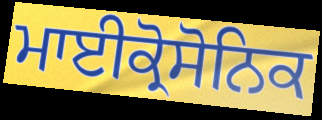
ਮਾਈਕ੍ਰੋਸੋਨਿਕ